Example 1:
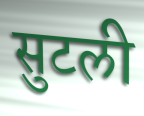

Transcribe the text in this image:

सुटली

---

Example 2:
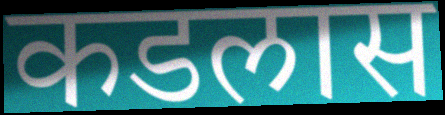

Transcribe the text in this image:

कडलास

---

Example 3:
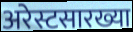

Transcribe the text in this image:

अरेस्टसारख्या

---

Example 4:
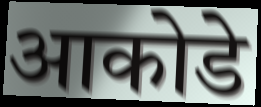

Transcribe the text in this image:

आकोडे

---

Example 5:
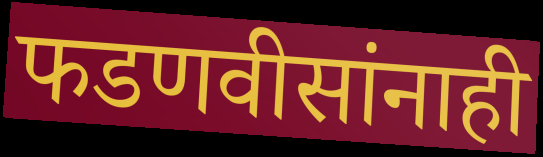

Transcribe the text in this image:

फडणवीसांनाही